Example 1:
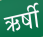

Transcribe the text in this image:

ऋर्षी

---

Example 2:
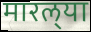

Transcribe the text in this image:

मारल्या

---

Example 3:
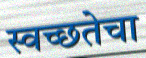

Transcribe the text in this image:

स्वच्छतेचा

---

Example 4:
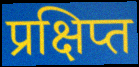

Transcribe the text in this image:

प्रक्षिप्त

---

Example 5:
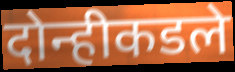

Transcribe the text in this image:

दोन्हीकडले